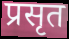
प्रसृत